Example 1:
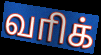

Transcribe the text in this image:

வரிக்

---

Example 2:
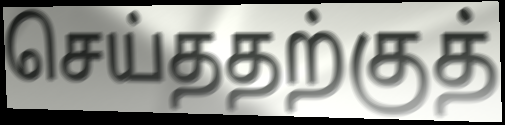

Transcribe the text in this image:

செய்ததற்குத்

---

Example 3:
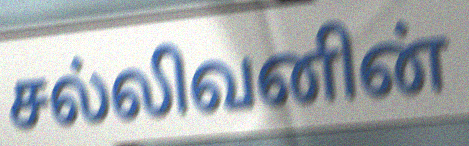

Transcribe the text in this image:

சல்லிவனின்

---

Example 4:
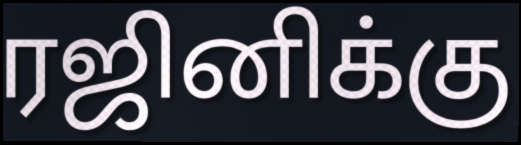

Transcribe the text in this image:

ரஜினிக்கு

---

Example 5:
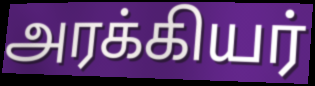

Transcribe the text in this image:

அரக்கியர்